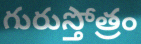
గురుస్తోత్రం